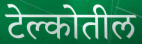
टेल्कोतील